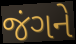
જંગને